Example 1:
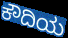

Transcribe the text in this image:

ಕೌದಿಯ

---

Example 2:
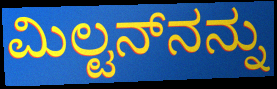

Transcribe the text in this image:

ಮಿಲ್ಟನ್‌ನನ್ನು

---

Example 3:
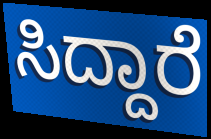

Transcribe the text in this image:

ಸಿದ್ದಾರೆ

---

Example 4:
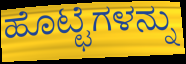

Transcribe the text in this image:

ಹೊಟ್ಟೆಗಳನ್ನು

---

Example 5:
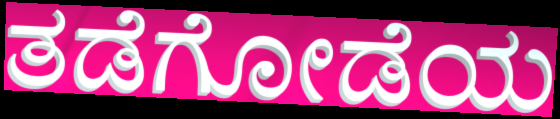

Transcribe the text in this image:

ತಡೆಗೋಡೆಯ